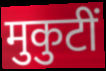
मुकुटीं